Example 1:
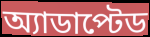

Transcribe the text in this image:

অ্যাডাপ্টেড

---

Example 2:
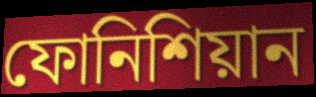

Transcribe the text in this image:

ফোনিশিয়ান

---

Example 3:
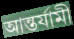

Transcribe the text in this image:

আন্তর্যামী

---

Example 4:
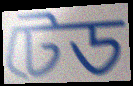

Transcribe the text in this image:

টেড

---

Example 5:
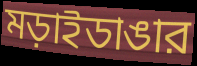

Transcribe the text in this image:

মড়াইডাঙার